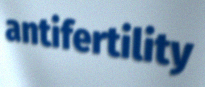
antifertility